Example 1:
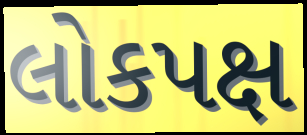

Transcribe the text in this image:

લોકપક્ષ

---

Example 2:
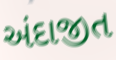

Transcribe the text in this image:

અંદાજીત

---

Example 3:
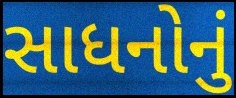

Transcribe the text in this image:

સાધનોનું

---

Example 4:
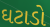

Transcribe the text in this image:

ઘટાડો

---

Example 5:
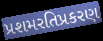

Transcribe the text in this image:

પ્રશમરતિપ્રકરણ